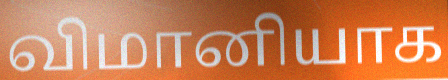
விமானியாக